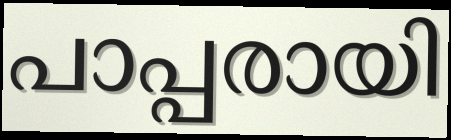
പാപ്പരായി